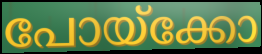
പോയ്ക്കോ